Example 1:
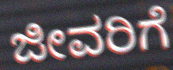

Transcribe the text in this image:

ಜೀವರಿಗೆ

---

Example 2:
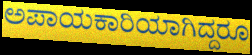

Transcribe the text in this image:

ಅಪಾಯಕಾರಿಯಾಗಿದ್ದರೂ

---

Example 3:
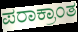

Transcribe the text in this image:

ಪರಾಕ್ರಾಂತ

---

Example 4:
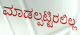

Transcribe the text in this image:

ಮಾಡಲ್ಪಟ್ಟಿರಲಿಲ್ಲ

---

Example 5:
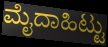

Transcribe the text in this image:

ಮೈದಾಹಿಟ್ಟು